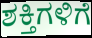
ಶಕ್ತಿಗಳಿಗೆ